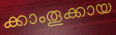
ക്കാംതൂക്കായ